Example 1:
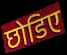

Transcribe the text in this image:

छोडिए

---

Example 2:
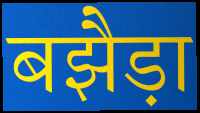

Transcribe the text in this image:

बझैड़ा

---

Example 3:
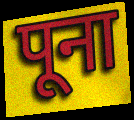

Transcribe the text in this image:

पूना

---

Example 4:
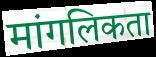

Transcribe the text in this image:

मांगलिकता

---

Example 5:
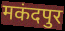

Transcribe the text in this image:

मकंदपुर